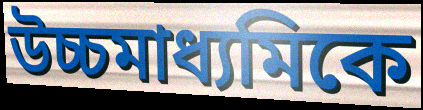
উচ্চমাধ্যমিকে